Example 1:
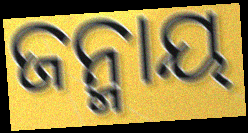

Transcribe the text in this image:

ଜନ୍ମାୟ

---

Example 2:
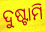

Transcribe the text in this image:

ଦୁଷ୍ଟାମି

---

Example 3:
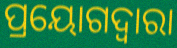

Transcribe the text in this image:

ପ୍ରୟୋଗଦ୍ଵାରା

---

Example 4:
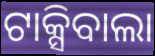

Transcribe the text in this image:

ଟାକ୍ସିବାଲା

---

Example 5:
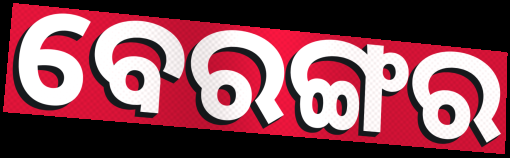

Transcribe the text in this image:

ବେରଙ୍ଗର